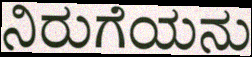
ನಿರುಗೆಯನು